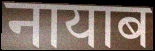
नायाब